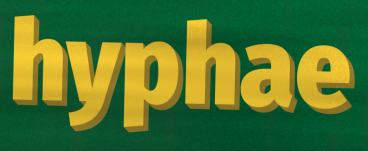
hyphae